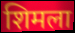
शिमला